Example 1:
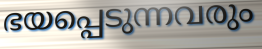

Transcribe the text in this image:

ഭയപ്പെടുന്നവരും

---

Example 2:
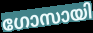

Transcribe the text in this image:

ഗോസായി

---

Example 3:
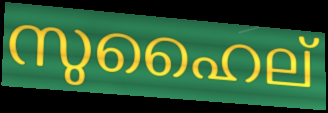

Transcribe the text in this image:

സുഹൈല്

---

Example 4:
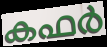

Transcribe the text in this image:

കഫർ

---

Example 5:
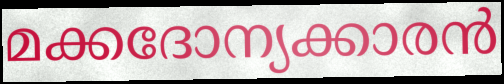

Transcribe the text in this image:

മക്കദോന്യക്കാരൻ